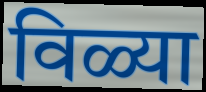
विळ्या